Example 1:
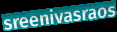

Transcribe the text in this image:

sreenivasraos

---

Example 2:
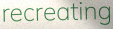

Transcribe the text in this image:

recreating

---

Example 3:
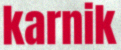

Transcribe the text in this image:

karnik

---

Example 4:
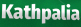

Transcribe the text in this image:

Kathpalia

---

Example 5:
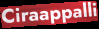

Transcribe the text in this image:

Ciraappalli